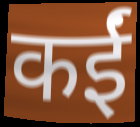
कईं